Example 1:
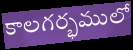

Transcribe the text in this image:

కాలగర్భములో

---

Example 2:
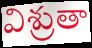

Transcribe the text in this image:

విశ్రుతా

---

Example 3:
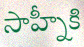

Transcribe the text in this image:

సాహ్నీకి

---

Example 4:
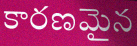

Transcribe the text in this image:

కారణమైన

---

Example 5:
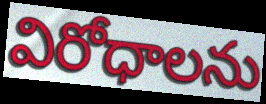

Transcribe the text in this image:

విరోధాలను